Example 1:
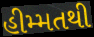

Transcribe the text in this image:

હીમ્મતથી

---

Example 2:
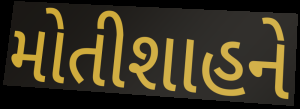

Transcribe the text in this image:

મોતીશાહને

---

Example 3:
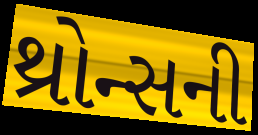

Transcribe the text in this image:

થ્રોન્સની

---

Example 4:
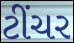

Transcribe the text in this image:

ટીંચર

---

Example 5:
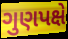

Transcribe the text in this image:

ગુણપક્ષે